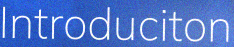
Introduciton